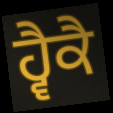
ਹ੍ਵੈਕੈ